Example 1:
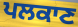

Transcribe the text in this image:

ਪਲਕਾਣ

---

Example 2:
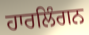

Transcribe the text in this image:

ਹਾਰਲਿੰਗਨ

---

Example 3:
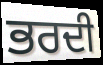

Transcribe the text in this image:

ਭਰਦੀ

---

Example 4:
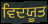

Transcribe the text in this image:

ਵਿਦਯੂਤ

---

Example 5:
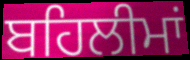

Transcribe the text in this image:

ਬਹਿਲੀਮਾਂ